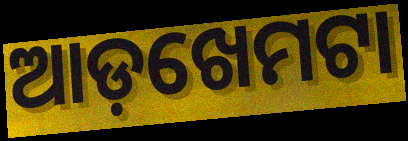
ଆଡ଼ଖେମଟା